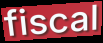
fiscal